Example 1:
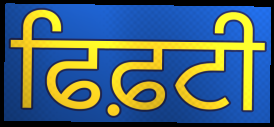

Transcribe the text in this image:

ਫਿਫ਼ਟੀ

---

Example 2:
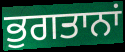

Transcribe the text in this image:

ਭੁਗਤਾਨਾਂ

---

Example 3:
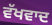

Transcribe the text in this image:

ਵੱਖਵਾਦ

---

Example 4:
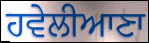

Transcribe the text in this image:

ਹਵੇਲੀਆਣਾ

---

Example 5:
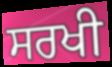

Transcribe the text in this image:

ਸਰਖੀ